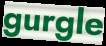
gurgle